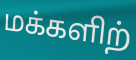
மக்களிற்